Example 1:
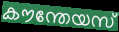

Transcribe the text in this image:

കൗന്തേയസ്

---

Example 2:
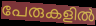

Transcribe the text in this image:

പേരുകളിൽ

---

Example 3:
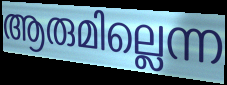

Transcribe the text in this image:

ആരുമില്ലെന്ന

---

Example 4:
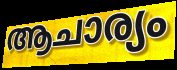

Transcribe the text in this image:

ആചാര്യം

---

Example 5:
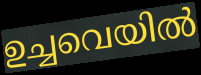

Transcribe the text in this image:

ഉച്ചവെയിൽ